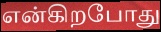
என்கிறபோது